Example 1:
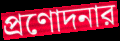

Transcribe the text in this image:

প্রণোদনার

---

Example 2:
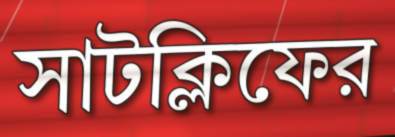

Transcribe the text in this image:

সাটক্লিফের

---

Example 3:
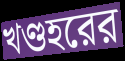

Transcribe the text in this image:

খণ্ডহরের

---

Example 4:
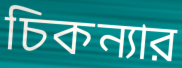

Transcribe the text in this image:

চিকন্যার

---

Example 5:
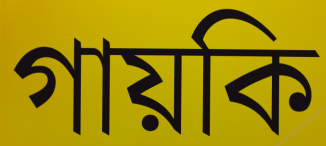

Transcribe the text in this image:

গায়কি